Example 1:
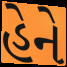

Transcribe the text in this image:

હેને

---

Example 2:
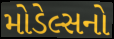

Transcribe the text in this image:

મોડેલ્સનો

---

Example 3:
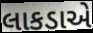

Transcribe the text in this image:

લાકડાએ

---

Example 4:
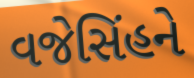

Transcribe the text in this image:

વજેસિંહને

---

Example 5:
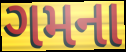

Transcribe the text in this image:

ગમના